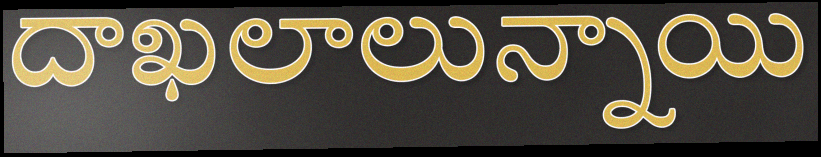
దాఖలాలున్నాయి